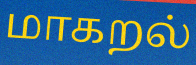
மாகறல்